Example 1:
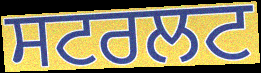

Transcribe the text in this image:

ਸਟਰਲਟ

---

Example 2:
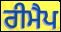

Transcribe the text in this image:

ਰੀਮੈਪ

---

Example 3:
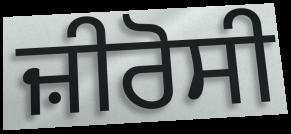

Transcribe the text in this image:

ਜ਼ੀਰੋਸੀ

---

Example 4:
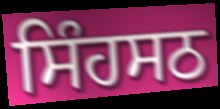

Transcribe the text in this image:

ਸਿੰਹਸਠ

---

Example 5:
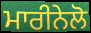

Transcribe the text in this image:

ਮਾਰੀਨੇਲੋ